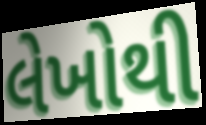
લેખોથી